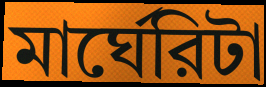
মার্ঘেরিটা